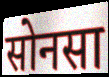
सोनसा